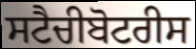
ਸਟੈਚੀਬੋਟਰੀਸ